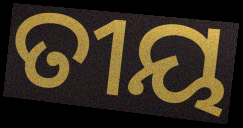
ତୀୟ